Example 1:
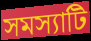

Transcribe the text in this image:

সমস্যাটি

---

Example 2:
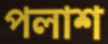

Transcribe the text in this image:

পলাশ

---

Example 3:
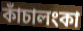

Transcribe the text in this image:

কাঁচালংকা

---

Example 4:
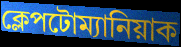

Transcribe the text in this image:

ক্লেপটোম্যানিয়াক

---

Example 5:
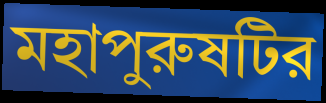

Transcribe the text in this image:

মহাপুরুষটির